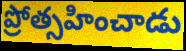
ప్రోత్సహించాడు